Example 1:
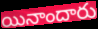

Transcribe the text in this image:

యినాందారు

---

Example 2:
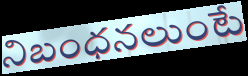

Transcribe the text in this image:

నిబంధనలుంటే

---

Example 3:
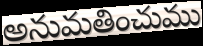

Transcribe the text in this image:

అనుమతించుము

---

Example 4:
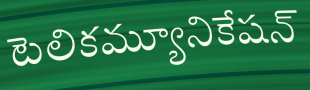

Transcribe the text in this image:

టెలికమ్యూనికేషన్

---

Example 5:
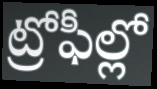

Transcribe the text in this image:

ట్రోఫీల్లో